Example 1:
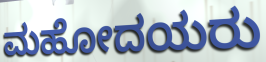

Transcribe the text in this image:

ಮಹೋದಯರು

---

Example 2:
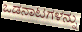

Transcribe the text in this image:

ಒಡನಾಟಗಳನ್ನು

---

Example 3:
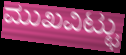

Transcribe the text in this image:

ಮುಖವಿಟ್ಟು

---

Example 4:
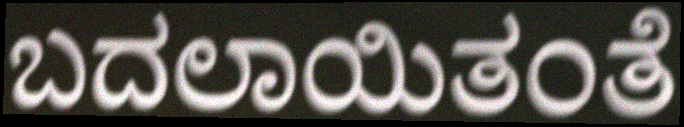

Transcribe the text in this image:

ಬದಲಾಯಿತಂತೆ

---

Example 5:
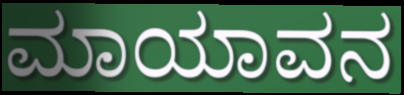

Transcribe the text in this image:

ಮಾಯಾವನ